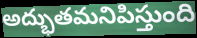
అద్భుతమనిపిస్తుంది